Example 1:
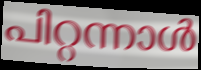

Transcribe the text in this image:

പിറ്റന്നാൾ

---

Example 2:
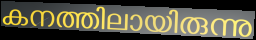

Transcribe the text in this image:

കനത്തിലായിരുന്നു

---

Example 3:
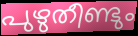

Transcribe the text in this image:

പുഴുതീണ്ടും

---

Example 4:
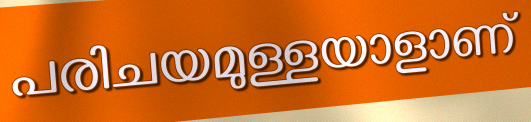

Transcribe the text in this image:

പരിചയമുള്ളയാളാണ്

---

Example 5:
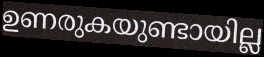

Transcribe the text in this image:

ഉണരുകയുണ്ടായില്ല